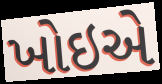
ખોઇએ